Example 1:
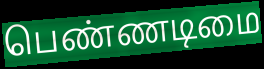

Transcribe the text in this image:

பெண்ணடிமை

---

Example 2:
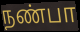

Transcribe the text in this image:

நண்பா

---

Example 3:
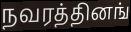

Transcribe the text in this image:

நவரத்தினங்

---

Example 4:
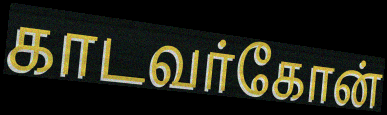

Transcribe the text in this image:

காடவர்கோன்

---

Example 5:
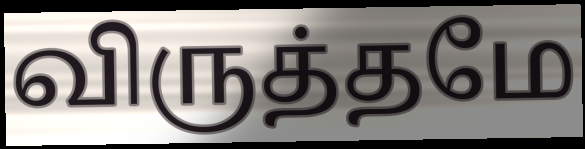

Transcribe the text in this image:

விருத்தமே